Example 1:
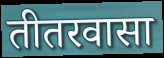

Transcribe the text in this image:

तीतरवासा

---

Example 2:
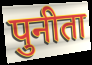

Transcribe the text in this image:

पुनीता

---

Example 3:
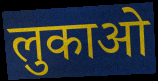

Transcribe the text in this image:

लुकाओ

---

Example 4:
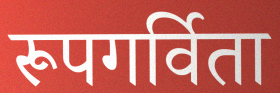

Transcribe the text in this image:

रूपगर्विता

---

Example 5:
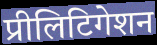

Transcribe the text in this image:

प्रीलिटिगेशन